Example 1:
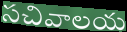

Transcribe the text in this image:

సచివాలయ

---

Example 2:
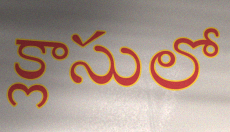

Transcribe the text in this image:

క్లాసులో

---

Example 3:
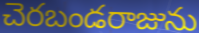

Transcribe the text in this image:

చెరబండరాజును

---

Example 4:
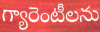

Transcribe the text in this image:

గ్యారెంటీలను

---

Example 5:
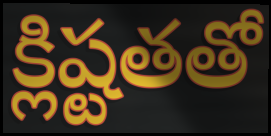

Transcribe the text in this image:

క్లిష్టతతో